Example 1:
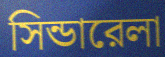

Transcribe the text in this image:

সিন্ডারেলা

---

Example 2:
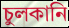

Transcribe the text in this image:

চুলকানি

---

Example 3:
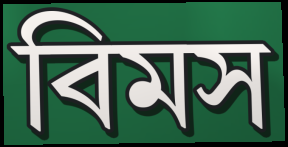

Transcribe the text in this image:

বিমস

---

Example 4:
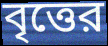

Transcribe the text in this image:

বৃত্তের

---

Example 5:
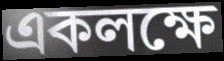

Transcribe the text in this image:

একলক্ষে